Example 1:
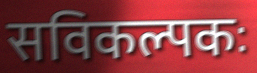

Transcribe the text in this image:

सविकल्पकः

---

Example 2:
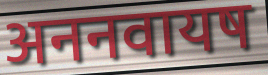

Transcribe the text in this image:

अननवायष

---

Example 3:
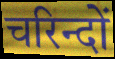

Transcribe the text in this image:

चरिन्दों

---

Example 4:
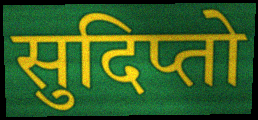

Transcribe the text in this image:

सुदिप्तो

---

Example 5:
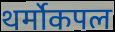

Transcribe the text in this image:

थर्मोकपल